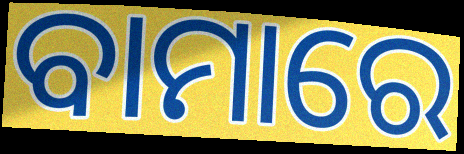
ବାମାରେ